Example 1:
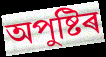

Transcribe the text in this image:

অপুষ্টিৰ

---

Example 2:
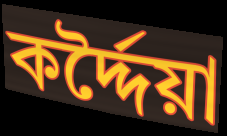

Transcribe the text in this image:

কৰ্দ্দৈয়া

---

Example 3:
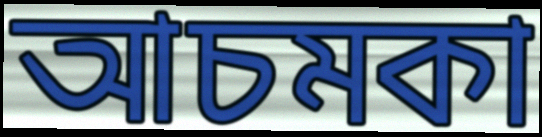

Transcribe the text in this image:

আচমকা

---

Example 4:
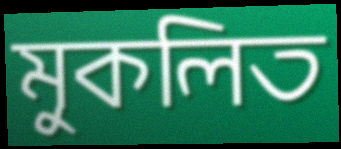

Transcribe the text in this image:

মুকলিত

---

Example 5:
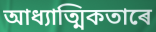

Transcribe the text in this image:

আধ্যাত্মিকতাৰে